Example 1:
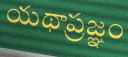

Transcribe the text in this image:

యథాప్రజ్ఞం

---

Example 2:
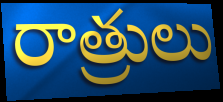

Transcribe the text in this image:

రాత్రులు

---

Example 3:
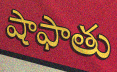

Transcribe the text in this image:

షాఫాతు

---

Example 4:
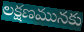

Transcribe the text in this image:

లక్షణమునకు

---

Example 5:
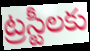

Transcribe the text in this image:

ట్రస్టీలకు